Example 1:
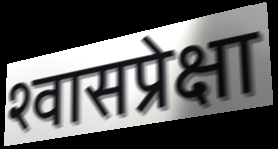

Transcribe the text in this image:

श्वासप्रेक्षा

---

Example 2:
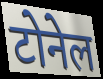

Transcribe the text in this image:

टोनेल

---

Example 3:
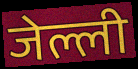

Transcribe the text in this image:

जेल्ली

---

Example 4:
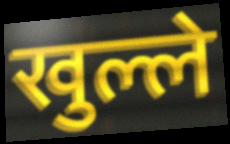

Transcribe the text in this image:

खुल्ले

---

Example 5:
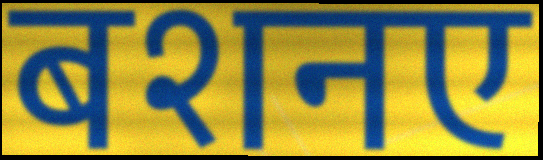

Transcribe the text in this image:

बशनए